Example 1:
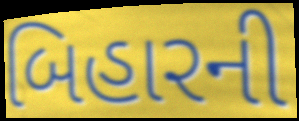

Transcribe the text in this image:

બિહારની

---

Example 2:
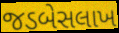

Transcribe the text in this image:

જડબેસલાખ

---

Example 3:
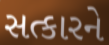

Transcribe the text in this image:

સત્કારને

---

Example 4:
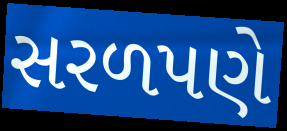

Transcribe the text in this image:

સરળપણે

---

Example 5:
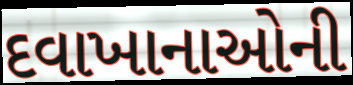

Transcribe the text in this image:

દવાખાનાઓની